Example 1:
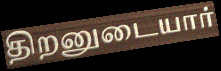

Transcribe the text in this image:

திறனுடையார்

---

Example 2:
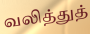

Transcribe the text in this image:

வலித்துத்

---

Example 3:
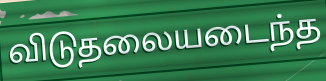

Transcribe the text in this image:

விடுதலையடைந்த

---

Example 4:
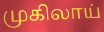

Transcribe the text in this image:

முகிலாய்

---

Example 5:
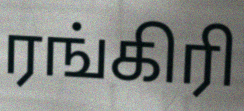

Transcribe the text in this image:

ரங்கிரி